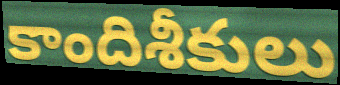
కాందిశీకులు